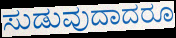
ಸುಡುವುದಾದರೂ